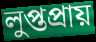
লুপ্তপ্ৰায়